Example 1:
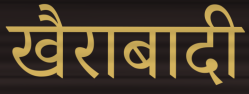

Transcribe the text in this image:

खैराबादी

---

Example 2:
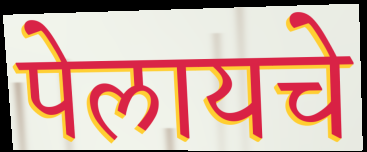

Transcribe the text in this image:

पेलायचे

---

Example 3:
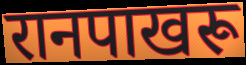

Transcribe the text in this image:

रानपाखरू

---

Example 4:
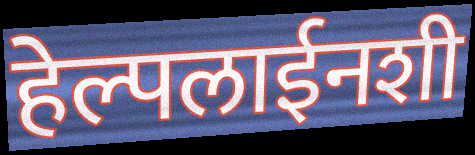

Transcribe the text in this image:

हेल्पलाईनशी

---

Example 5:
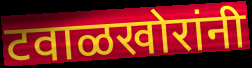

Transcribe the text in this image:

टवाळखोरांनी